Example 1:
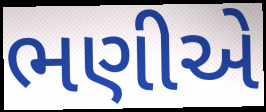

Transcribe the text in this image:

ભણીએ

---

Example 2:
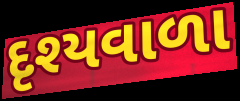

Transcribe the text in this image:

દૃશ્યવાળા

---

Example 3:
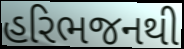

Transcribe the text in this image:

હરિભજનથી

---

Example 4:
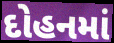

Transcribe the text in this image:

દોહનમાં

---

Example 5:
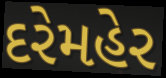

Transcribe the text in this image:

દરેમહેર